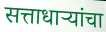
सत्ताधाऱ्यांचा